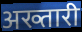
अख्तारी